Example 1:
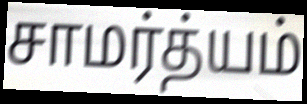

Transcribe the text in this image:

சாமர்த்யம்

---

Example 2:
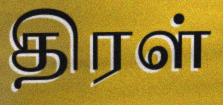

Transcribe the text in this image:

திரள்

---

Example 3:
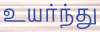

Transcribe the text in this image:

உயர்ந்து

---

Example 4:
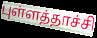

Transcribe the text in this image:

புள்ளத்தாச்சி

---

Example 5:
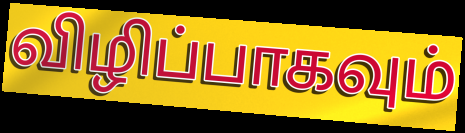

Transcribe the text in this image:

விழிப்பாகவும்